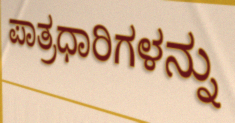
ಪಾತ್ರಧಾರಿಗಳನ್ನು